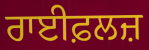
ਰਾਈਫ਼ਲਜ਼